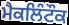
ਮੈਕਲਿੰਟੌਕ